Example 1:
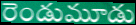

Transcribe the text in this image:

రెండుమూడు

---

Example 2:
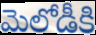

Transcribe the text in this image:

మెలోడీకి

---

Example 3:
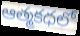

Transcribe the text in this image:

ఆత్మకధలో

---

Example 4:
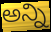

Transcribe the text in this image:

అన్ని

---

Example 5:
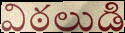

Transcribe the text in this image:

విఠలుడి